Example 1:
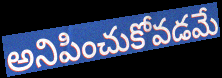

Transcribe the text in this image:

అనిపించుకోవడమే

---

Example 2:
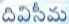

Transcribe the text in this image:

దివిసీమ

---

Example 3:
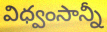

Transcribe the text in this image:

విధ్వంసాన్నీ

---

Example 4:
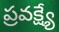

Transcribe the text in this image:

ప్రవక్ష్యే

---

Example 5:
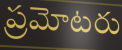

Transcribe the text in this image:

ప్రమోటరు